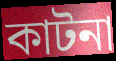
কাটনা